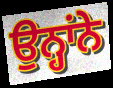
ਉਨ੍ਹਾਂਨੇ